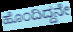
ಹೊಂದಿದ್ದನೇ